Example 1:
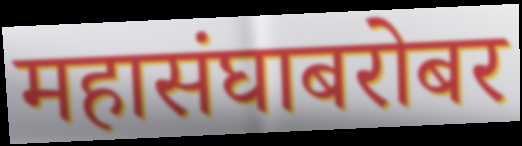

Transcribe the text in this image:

महासंघाबरोबर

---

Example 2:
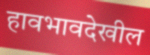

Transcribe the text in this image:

हावभावदेखील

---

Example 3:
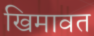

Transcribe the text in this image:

खिमावत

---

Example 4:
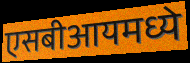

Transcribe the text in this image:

एसबीआयमध्ये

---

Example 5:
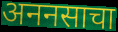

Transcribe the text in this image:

अननसाचा